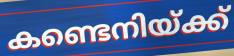
കണ്ടെനിയ്ക്ക്